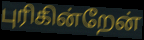
புரிகின்றேன்